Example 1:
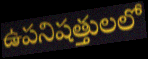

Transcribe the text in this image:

ఉపనిషత్తులలో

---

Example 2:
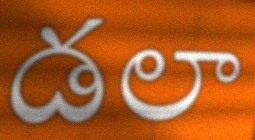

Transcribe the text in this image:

డలా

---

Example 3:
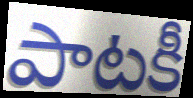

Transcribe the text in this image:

పాటకీ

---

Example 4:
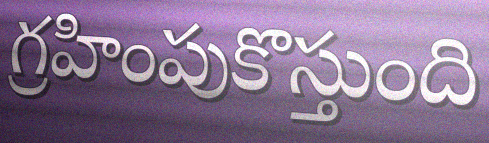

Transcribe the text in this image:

గ్రహింపుకొస్తుంది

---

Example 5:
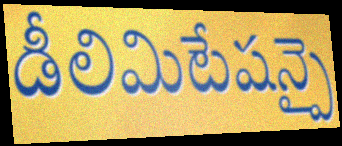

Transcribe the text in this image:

డీలిమిటేషన్పై